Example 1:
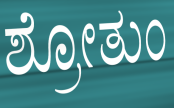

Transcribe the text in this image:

ಶ್ರೋತುಂ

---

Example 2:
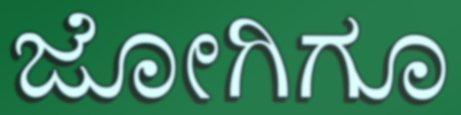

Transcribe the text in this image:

ಜೋಗಿಗೂ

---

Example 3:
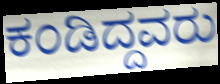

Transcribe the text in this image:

ಕಂಡಿದ್ದವರು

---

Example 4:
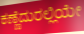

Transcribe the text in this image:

ಕಣ್ಣೆದುರಲ್ಲಿಯೇ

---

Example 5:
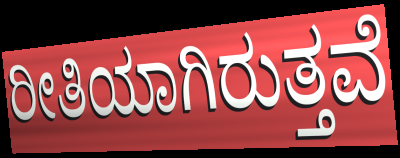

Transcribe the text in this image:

ರೀತಿಯಾಗಿರುತ್ತವೆ